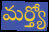
మర్త్యో